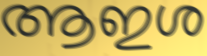
ആഇശ